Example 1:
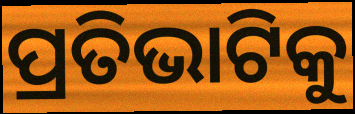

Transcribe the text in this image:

ପ୍ରତିଭାଟିକୁ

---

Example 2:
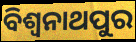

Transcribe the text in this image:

ବିଶ୍ଵନାଥପୁର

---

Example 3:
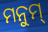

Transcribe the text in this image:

ମନୁମ୍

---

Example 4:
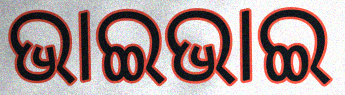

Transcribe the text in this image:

ଭାଇଭାଇ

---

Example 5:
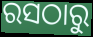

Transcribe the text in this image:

ରସଠାରୁ